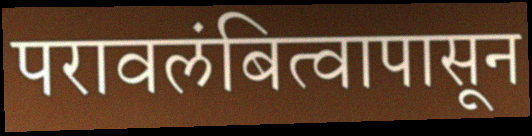
परावलंबित्वापासून